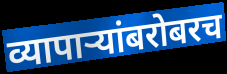
व्यापाऱ्यांबरोबरच